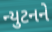
ન્યુટનને